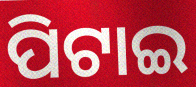
ପିଟାଇ